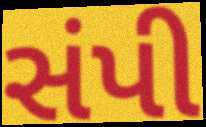
સંપી